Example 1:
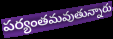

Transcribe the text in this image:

పర్యంతమవుతున్నారు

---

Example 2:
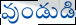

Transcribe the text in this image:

వుండుడి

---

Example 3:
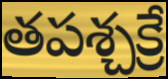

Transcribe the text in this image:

తపశ్చక్రే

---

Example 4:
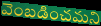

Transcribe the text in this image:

వెంబడించమని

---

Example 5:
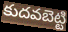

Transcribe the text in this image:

కుదవబెట్టి